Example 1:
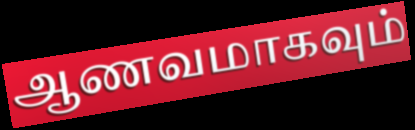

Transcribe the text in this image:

ஆணவமாகவும்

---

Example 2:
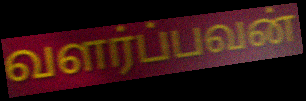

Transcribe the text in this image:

வளர்ப்பவன்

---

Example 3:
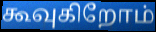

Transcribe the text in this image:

கூவுகிறோம்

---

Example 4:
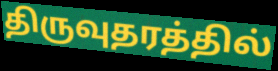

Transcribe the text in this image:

திருவுதரத்தில்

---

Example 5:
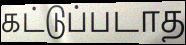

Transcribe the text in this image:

கட்டுப்படாத